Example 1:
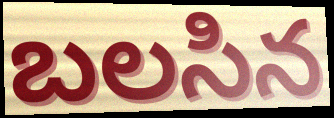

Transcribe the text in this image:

బలసిన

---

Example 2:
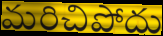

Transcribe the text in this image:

మరిచిపోదు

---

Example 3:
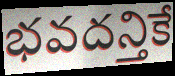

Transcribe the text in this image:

భవదన్తికే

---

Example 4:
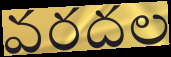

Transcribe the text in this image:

వరదల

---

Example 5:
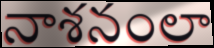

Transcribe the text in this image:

నాశనంలా